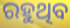
ରହୁଥିବ